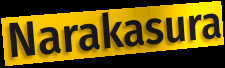
Narakasura